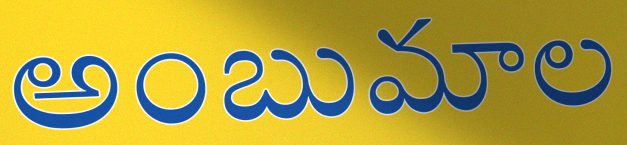
అంబుమాల